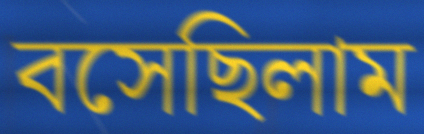
বসেছিলাম